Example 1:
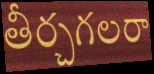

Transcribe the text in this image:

తీర్చగలరా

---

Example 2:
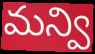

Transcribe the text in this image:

మన్వి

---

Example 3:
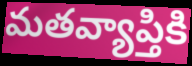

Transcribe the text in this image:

మతవ్యాప్తికి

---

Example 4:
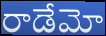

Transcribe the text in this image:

రాడేమో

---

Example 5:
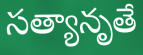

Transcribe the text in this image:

సత్యానృతే